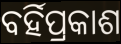
ବର୍ହିପ୍ରକାଶ